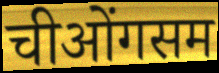
चीओंगसम